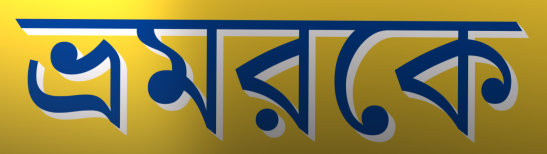
ভ্রমরকে